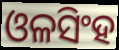
ଓଳସିଂହ